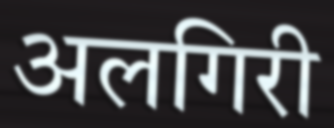
अलगिरी